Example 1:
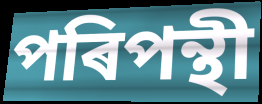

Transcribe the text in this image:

পৰিপন্থী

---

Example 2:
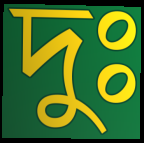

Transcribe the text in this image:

দুঃ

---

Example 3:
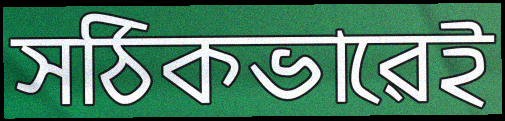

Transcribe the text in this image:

সঠিকভাৱেই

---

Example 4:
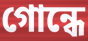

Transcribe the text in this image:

গোন্ধে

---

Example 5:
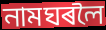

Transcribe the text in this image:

নামঘৰলৈ